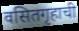
वसितगृहाची